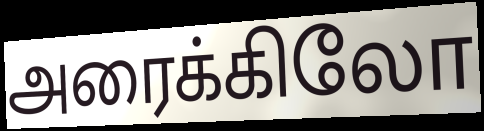
அரைக்கிலோ